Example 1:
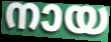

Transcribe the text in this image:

നായ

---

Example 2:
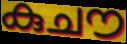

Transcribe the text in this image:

കുചൗ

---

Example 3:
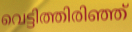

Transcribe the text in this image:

വെട്ടിത്തിരിഞ്ഞ്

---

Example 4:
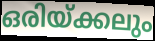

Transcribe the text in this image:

ഒരിയ്ക്കലും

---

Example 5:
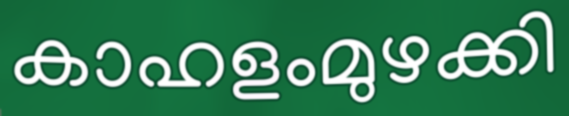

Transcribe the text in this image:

കാഹളംമുഴക്കി